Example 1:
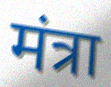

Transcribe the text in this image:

मंत्रा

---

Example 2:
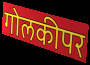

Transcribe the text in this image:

गोलकीपर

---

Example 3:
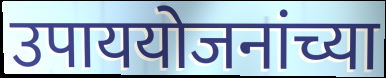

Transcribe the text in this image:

उपाययोजनांच्या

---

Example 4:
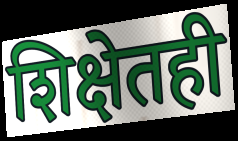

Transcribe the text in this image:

शिक्षेतही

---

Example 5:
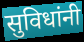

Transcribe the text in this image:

सुविधांनी